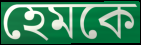
হেমকে